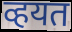
व्हयत